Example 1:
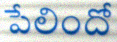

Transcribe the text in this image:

పేలిందో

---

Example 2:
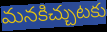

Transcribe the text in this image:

మనకిచ్చుటకు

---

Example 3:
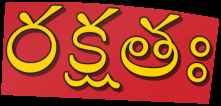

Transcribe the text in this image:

రక్షతః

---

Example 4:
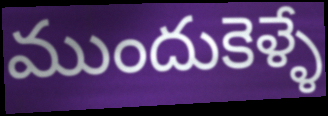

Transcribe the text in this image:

ముందుకెళ్ళే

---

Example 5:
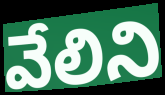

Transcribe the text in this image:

వేలిని